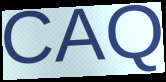
CAQ